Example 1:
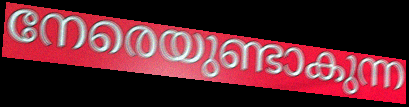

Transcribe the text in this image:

നേരെയുണ്ടാകുന്ന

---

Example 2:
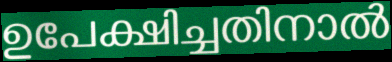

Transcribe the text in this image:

ഉപേക്ഷിച്ചതിനാൽ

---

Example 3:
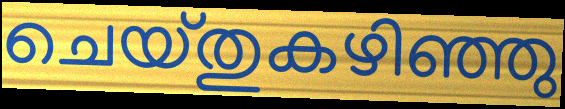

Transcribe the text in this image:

ചെയ്തുകഴിഞ്ഞു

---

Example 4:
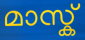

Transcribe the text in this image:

മാസ്ക്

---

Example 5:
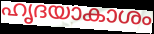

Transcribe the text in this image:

ഹൃദയാകാശം